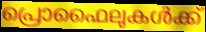
പ്രൊഫൈലുകൾക്ക്